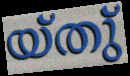
യ്തു്